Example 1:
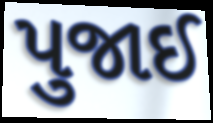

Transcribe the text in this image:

પુજાઈ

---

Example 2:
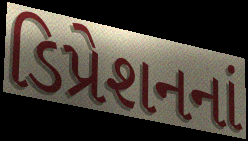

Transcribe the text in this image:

ડિપ્રેશનનાં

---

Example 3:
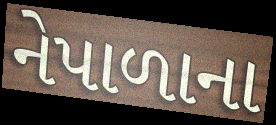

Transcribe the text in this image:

નેપાળાના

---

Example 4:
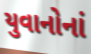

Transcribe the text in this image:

યુવાનોનાં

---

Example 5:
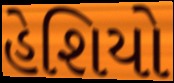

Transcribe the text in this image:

હેશિયો